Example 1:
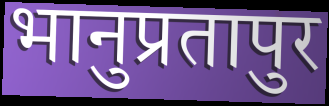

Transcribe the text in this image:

भानुप्रतापुर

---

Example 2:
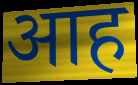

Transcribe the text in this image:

आह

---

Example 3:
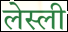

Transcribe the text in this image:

लेस्ली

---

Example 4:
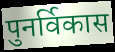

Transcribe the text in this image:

पुनर्विकास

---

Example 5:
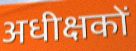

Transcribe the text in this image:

अधीक्षकों